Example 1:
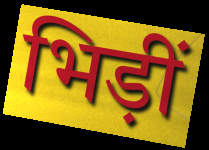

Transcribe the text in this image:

भिड़ीं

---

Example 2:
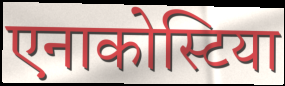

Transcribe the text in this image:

एनाकोस्टिया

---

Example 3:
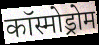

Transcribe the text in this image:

कॉस्मोड्रोम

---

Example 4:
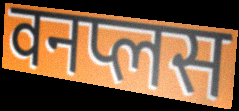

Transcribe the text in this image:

वनप्लस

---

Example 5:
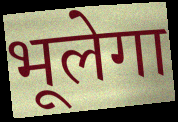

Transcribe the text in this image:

भूलेगा